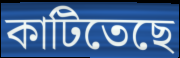
কাটিতেছে